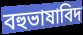
বহুভাষাবিদ